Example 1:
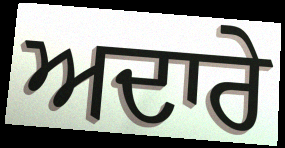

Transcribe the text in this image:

ਅਦਾਰੇ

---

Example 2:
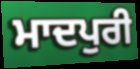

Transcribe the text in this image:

ਮਾਦਪੁਰੀ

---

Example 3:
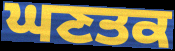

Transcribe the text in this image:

ਘਣਤਕ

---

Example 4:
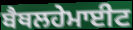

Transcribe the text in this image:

ਬੈਥਲਹੇਮਾਈਟ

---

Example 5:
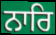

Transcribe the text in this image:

ਨਾਰਿ